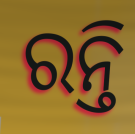
ରନ୍ତି